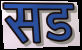
सड